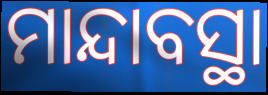
ମାନ୍ଦାବସ୍ଥା